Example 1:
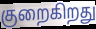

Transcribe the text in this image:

குறைகிறது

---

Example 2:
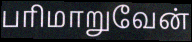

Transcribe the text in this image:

பரிமாறுவேன்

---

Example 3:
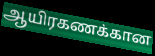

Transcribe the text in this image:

ஆயிரகணக்கான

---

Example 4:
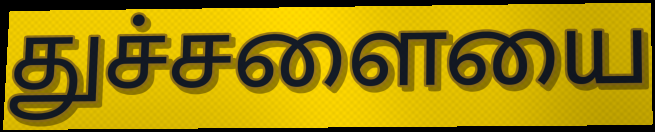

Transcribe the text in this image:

துச்சளையை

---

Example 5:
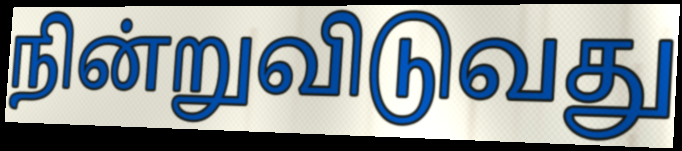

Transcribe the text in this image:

நின்றுவிடுவது